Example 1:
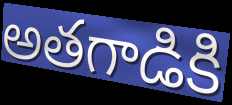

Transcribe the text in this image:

అతగాడికి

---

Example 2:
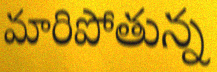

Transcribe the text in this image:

మారిపోతున్న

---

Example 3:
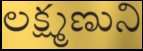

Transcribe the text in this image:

లక్ష్మణుని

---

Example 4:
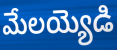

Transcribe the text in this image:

మేలయ్యెడి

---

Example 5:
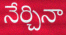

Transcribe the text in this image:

నేర్చినా